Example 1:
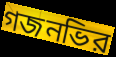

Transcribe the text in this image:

গজনভির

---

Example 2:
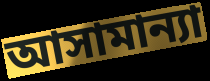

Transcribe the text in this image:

আসামান্যা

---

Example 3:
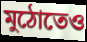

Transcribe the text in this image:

মুঠোতেও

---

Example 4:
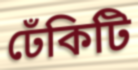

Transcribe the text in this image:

ঢেঁকিটি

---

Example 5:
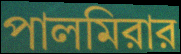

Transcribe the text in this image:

পালমিরার